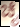
ಚೈ